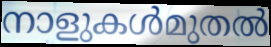
നാളുകൾമുതൽ